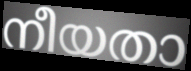
നീയതാ